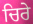
ਚਿਰੇ